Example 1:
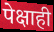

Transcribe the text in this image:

पेक्षाही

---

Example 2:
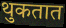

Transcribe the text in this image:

थुकतात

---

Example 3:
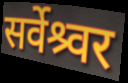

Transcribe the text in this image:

सर्वेश्र्वर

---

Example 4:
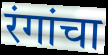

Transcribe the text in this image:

रंगांचा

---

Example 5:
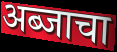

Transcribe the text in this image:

अब्जाचा